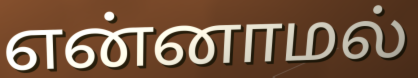
என்னாமல்